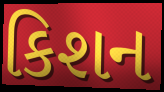
કિશન